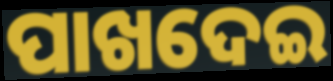
ପାଖଦେଇ